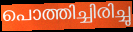
പൊത്തിച്ചിരിച്ചു